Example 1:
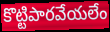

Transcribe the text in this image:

కొట్టిపారవేయలేం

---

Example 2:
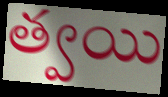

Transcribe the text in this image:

త్వయి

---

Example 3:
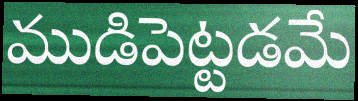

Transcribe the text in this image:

ముడిపెట్టడమే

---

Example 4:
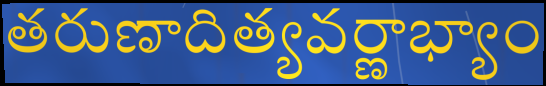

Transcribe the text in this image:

తరుణాదిత్యవర్ణాభ్యాం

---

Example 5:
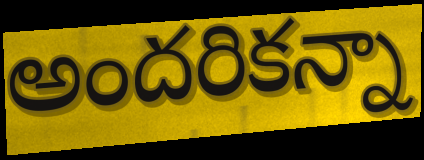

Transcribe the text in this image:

అందరికన్నా